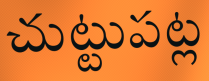
చుట్టుపట్ల